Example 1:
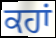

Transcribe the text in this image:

ਕਹਾਂ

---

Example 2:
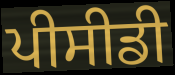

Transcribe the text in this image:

ਪੀਸੀਡੀ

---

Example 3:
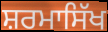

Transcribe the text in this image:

ਸ਼ਰਮਾਸਿੱਖ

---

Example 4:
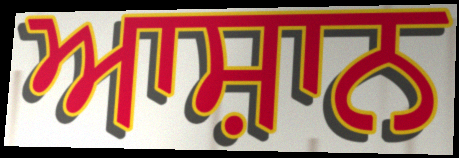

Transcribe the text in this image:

ਆਸ਼ਾਨ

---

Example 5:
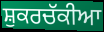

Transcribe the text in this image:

ਸ਼ੁਕਰਚੱਕੀਆ